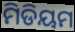
ମିଡିୟମ